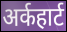
अर्कहार्ट